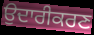
ਉਦਾਰੀਕਰਣ